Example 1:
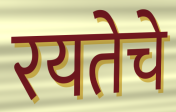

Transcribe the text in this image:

रयतेचे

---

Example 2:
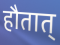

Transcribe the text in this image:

हौतात्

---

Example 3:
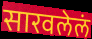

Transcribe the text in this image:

सारवलेलं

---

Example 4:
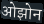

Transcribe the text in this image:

ओझोन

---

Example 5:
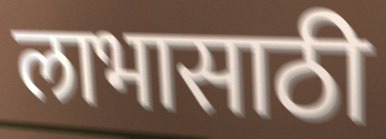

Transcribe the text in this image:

लाभासाठी